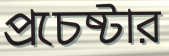
প্রচেষ্টার